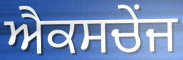
ਐਕਸਚੇਂਜ